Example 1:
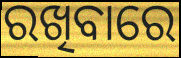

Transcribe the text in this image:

ରଖିବାରେ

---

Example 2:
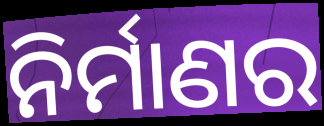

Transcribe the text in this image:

ନିର୍ମାଣର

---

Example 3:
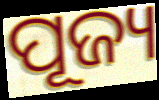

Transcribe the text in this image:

ପୂଜ୍ୟ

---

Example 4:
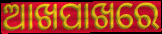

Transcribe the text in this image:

ଆଖପାଖରେ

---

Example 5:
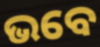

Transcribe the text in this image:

ଭବେ